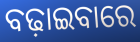
ବଢ଼ାଇବାରେ